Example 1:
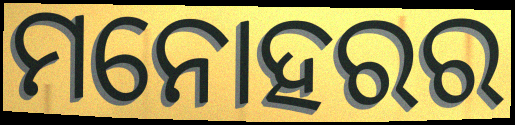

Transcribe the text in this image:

ମନୋହରର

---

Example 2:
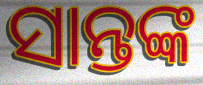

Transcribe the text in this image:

ସାନ୍ତଙ୍କ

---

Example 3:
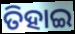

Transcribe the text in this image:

ତିହାଇ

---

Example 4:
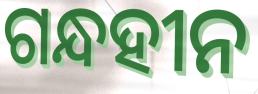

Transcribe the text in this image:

ଗନ୍ଧହୀନ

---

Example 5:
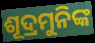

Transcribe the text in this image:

ଶୂଦ୍ରମୁନିଙ୍କ